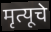
मृत्यूचे